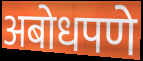
अबोधपणे